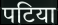
पटिया